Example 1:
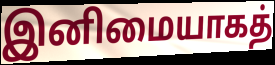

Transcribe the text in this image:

இனிமையாகத்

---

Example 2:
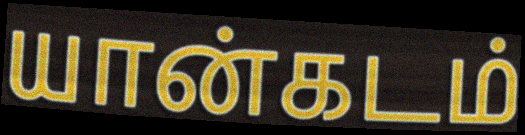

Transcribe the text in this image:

யான்கடம்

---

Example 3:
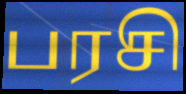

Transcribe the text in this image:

பரசி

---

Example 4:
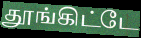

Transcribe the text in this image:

தூங்கிட்டே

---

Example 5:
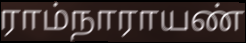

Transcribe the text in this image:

ராம்நாராயண்